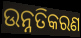
ଉନ୍ନତିକରଣ